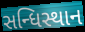
સન્ધિસ્થાન